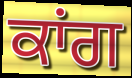
ਕਾਂਗ